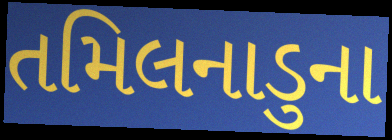
તમિલનાડુના